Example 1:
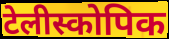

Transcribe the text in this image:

टेलीस्कोपिक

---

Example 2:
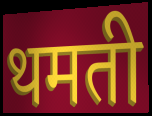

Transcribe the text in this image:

थमती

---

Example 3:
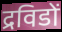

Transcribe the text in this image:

द्रविडों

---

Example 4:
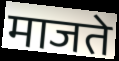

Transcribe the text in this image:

माजते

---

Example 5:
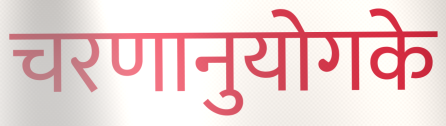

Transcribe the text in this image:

चरणानुयोगके